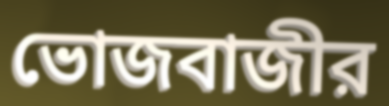
ভোজবাজীর